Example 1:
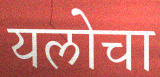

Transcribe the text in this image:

यलोचा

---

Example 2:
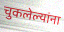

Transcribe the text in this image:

चुकलेल्यांना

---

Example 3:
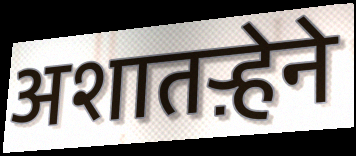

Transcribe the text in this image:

अशातऱ्‍हेने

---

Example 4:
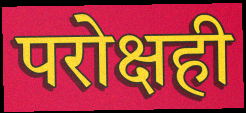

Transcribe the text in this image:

परोक्षही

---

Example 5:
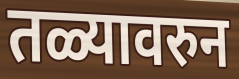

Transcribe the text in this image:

तळ्यावरुन